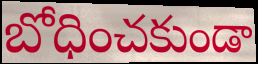
బోధించకుండా